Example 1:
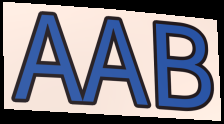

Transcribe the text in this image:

AAB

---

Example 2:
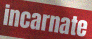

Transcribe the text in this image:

incarnate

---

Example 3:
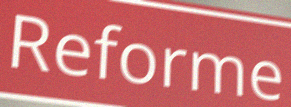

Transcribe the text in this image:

Reforme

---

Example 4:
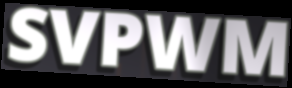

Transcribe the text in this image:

SVPWM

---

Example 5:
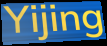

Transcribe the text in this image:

Yijing